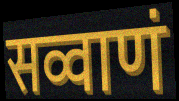
सव्वाणं